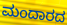
ಮಂದಾರದ